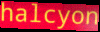
halcyon